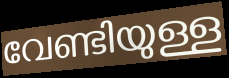
വേണ്ടിയുള്ള